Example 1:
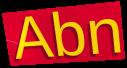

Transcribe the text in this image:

Abn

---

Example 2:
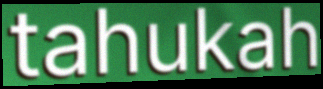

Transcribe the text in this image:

tahukah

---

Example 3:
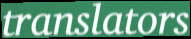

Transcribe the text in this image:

translators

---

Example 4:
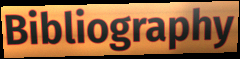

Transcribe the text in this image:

Bibliography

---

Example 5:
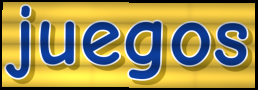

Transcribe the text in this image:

juegos